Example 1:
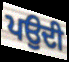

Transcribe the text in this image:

ਪਉਦੀ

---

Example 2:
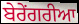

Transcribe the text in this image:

ਬੇਰੇਂਗਰੀਆ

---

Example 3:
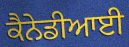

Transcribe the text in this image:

ਕੈਨੇਡੀਆਈ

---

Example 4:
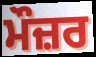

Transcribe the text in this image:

ਮੌਜ਼ਰ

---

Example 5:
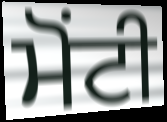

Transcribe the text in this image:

ਮੋਂਟੀ